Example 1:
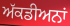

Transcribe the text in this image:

ਅੱਕਡੀਅਨਾਂ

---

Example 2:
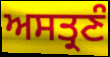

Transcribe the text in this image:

ਅਸਤ੍ਰਣੰ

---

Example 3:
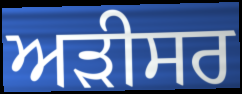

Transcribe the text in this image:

ਅੜੀਸਰ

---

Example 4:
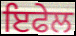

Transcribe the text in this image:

ਇਫੇਲ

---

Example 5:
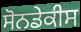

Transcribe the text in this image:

ਸੋਨਡੇਕੀਸ